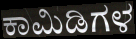
ಕಾಮಿಡಿಗಳ